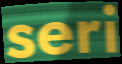
seri